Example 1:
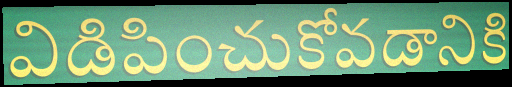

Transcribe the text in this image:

విడిపించుకోవడానికి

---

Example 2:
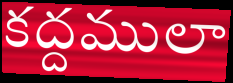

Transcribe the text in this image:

కద్దములా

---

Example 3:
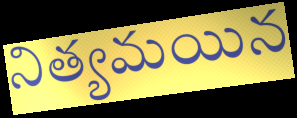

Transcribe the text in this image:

నిత్యమయిన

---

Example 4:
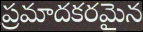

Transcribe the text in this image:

ప్రమాదకరమైన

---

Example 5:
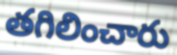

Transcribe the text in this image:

తగిలించారు